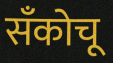
सँकोचू